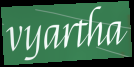
vyartha